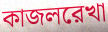
কাজলরেখা